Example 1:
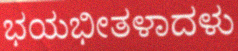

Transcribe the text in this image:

ಭಯಭೀತಳಾದಳು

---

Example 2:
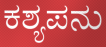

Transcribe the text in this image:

ಕಶ್ಯಪನು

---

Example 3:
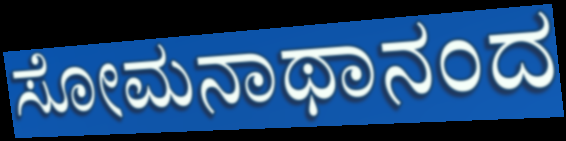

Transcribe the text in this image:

ಸೋಮನಾಥಾನಂದ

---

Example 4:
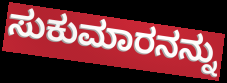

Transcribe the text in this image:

ಸುಕುಮಾರನನ್ನು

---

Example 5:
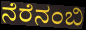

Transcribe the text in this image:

ನೆರೆನಂಬಿ